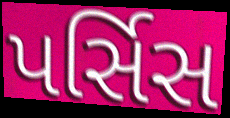
પર્સિસ